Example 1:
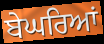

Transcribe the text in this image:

ਬੇਘਰਿਆਂ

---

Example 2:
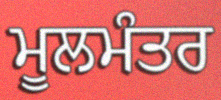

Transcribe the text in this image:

ਮੂਲਮੰਤਰ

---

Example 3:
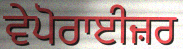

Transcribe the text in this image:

ਵੇਪੋਰਾਈਜ਼ਰ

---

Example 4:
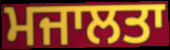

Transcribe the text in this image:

ਮਜਾਲਤਾ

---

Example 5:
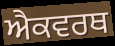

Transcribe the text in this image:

ਐਕਵਰਥ